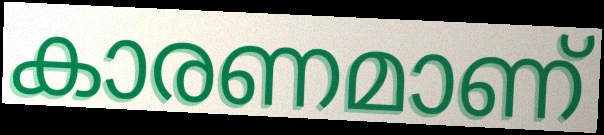
കാരണമാണ്